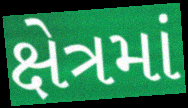
ક્ષેત્રમાં